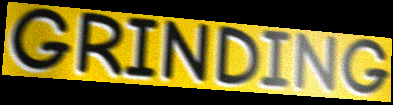
GRINDING